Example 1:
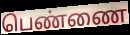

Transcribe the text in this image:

பெண்ணை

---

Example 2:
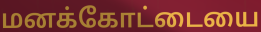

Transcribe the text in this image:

மனக்கோட்டையை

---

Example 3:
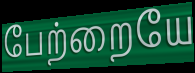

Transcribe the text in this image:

பேற்றையே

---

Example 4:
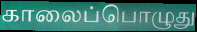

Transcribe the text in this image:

காலைப்பொழுது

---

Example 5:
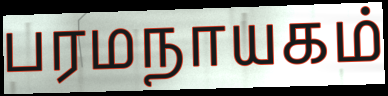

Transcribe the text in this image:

பரமநாயகம்